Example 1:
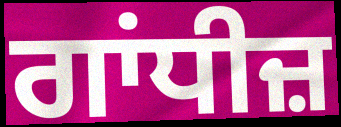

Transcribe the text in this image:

ਗਾਂਧੀਜ਼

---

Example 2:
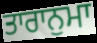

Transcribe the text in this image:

ਤਾਰਾਨੁਮਾ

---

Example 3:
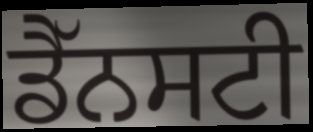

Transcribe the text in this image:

ਡੈੱਨਸਟੀ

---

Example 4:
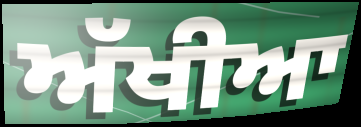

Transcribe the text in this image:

ਅੱਖੀਆ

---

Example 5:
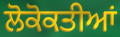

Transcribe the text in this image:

ਲੋਕੋਕਤੀਆਂ